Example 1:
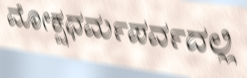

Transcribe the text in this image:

ಮೋಕ್ಷಧರ್ಮಪರ್ವದಲ್ಲಿ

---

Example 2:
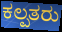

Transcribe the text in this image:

ಕಲ್ಪತರು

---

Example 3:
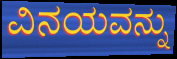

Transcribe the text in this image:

ವಿನಯವನ್ನು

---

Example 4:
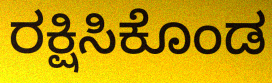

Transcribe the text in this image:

ರಕ್ಷಿಸಿಕೊಂಡ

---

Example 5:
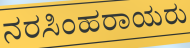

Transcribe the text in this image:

ನರಸಿಂಹರಾಯರು